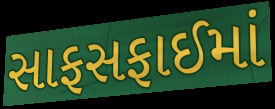
સાફસફાઈમાં